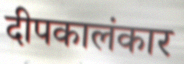
दीपकालंकार